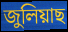
জুলিয়াছ